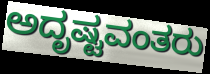
ಅದೃಷ್ಟವಂತರು